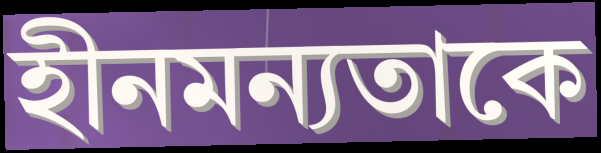
হীনমন্যতাকে